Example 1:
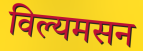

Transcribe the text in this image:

विल्यमसन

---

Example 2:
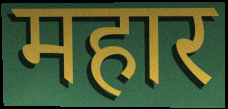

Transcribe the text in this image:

महार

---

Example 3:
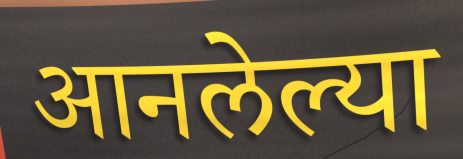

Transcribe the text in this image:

आनलेल्या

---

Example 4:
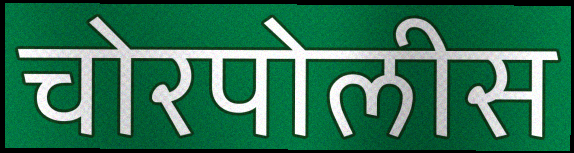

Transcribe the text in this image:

चोरपोलीस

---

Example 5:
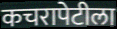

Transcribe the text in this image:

कचरापेटीला